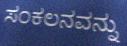
ಸಂಕಲನವನ್ನು